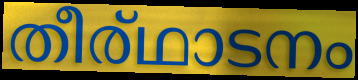
തീര്ഥാടനം